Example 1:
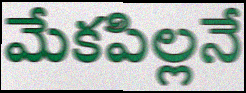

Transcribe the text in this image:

మేకపిల్లనే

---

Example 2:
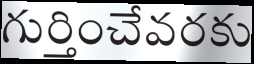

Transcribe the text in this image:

గుర్తించేవరకు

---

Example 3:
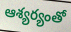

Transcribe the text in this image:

ఆశ్యర్యంతో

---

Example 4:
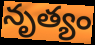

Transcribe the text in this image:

నృత్యం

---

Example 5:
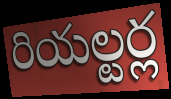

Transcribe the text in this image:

రియల్టర్ల